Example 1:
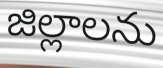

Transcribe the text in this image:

జిల్లాలను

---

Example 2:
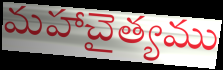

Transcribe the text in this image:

మహాచైత్యము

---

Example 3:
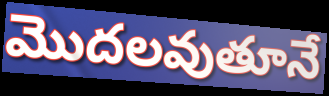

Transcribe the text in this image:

మొదలవుతూనే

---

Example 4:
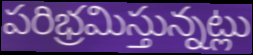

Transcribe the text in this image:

పరిభ్రమిస్తున్నట్లు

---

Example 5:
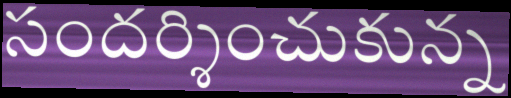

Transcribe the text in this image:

సందర్శించుకున్న